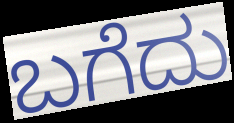
ಬಗೆದು